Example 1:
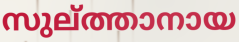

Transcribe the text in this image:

സുല്ത്താനായ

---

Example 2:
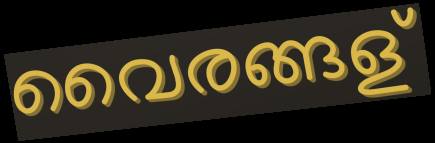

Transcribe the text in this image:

വൈരങ്ങള്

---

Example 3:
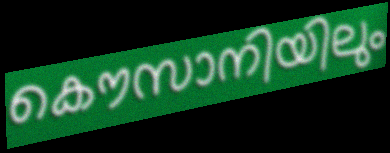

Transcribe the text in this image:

കൌസാനിയിലും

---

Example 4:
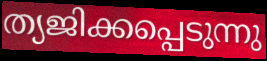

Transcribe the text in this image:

ത്യജിക്കപ്പെടുന്നു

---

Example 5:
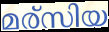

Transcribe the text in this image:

മര്സിയ